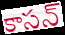
కాసన్